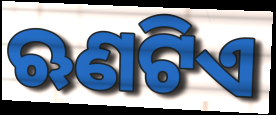
ଋଣଟିଏ